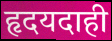
हृदयदाही